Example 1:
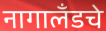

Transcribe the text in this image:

नागालँडचे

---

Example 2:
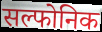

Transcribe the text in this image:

सल्फोनिक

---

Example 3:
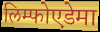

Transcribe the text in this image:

लिम्फोएडेमा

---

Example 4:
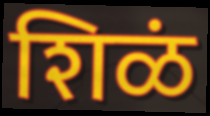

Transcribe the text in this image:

शिळं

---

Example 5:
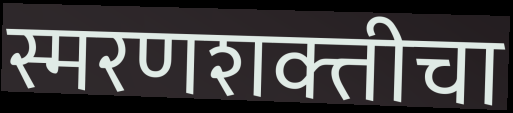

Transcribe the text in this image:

स्मरणशक्तीचा